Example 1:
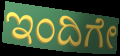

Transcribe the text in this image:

ಇಂದಿಗೇ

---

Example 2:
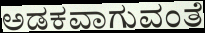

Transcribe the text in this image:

ಅಡಕವಾಗುವಂತೆ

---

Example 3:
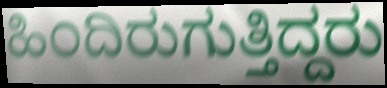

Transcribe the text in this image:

ಹಿಂದಿರುಗುತ್ತಿದ್ದರು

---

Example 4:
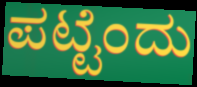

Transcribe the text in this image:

ಪಟ್ಟೆಂದು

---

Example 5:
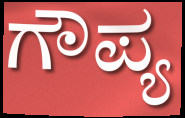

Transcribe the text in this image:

ಗೌಪ್ಯ